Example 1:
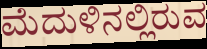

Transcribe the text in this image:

ಮೆದುಳಿನಲ್ಲಿರುವ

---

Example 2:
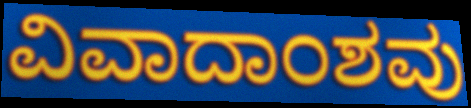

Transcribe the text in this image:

ವಿವಾದಾಂಶವು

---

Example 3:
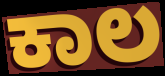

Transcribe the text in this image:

ಕಾಲ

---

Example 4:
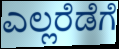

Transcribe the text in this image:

ಎಲ್ಲರೆಡೆಗೆ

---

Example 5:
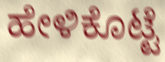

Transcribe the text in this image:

ಹೇಳಿಕೊಟ್ಟೆ